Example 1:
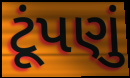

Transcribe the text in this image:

ટૂંપણું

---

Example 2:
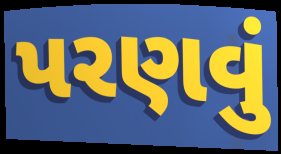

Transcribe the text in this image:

પરણવું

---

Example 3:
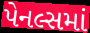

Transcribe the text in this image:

પેનલ્સમાં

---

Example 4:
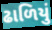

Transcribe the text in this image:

ઢાળિયું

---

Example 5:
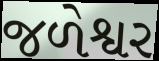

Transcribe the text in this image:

જળેશ્વર